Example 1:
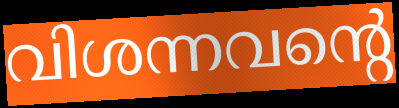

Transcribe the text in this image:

വിശന്നവന്റെ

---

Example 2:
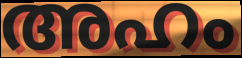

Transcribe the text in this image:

അഹം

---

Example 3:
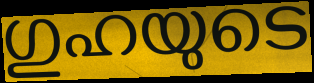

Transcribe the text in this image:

ഗുഹയുടെ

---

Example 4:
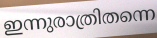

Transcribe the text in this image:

ഇന്നുരാത്രിതന്നെ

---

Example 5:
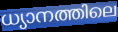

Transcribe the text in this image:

ധ്യാനത്തിലെ